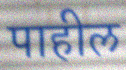
पाहील